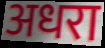
अधरा